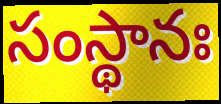
సంస్థానః